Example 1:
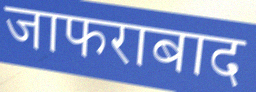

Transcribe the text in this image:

जाफराबाद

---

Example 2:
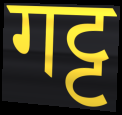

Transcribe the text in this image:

गट्ट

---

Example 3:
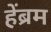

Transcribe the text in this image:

हेंब्रम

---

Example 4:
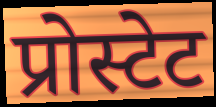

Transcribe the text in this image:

प्रोस्टेट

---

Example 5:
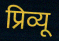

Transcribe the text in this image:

प्रिव्यू